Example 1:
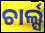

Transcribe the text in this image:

ଚାର୍ଲ୍ସ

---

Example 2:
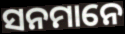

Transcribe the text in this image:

ସନମାନେ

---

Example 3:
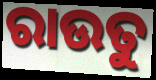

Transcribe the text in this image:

ରାଉତୁ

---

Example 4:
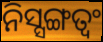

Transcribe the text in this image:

ନିସ୍ସଙ୍ଗତ୍ୱଂ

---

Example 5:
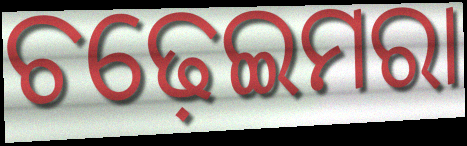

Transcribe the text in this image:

ଚଢ଼େଇମରା